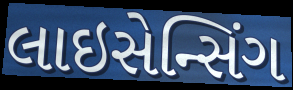
લાઇસેન્સિંગ